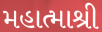
મહાત્માશ્રી